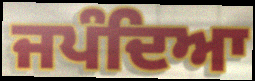
ਜਪੰਦਿਆ